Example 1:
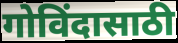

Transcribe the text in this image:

गोविंदासाठी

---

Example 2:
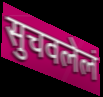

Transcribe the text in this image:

सुचवलेलं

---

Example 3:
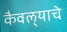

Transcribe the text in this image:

कैवल्याचे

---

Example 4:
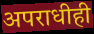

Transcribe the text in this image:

अपराधीही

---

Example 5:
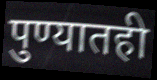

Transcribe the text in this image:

पुण्यातही